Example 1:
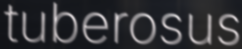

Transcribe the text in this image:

tuberosus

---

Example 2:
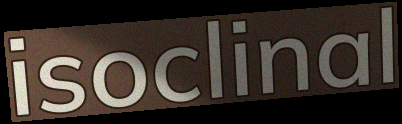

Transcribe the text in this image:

isoclinal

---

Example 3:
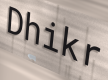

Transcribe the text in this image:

Dhikr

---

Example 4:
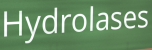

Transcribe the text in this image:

Hydrolases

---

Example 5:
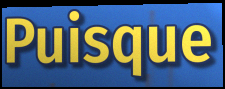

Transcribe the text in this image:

Puisque